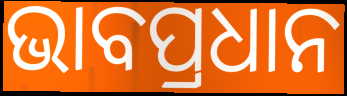
ଭାବପ୍ରଧାନ